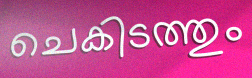
ചെകിടത്തും